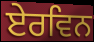
ਏਰਵਿਨ